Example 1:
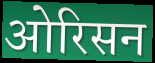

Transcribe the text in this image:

ओरिसन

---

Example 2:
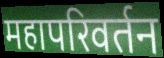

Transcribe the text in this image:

महापरिवर्तन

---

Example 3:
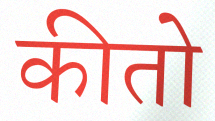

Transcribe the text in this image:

कीतो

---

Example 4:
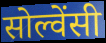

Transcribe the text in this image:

सोल्वेंसी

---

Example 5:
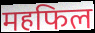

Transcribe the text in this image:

महफिल